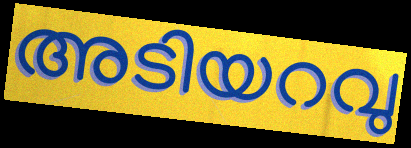
അടിയറവു